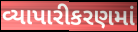
વ્યાપારીકરણમાં